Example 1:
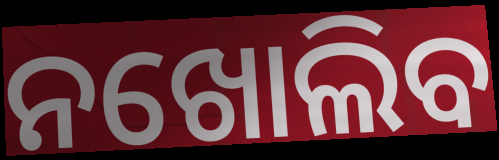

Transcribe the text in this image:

ନଖୋଲିବ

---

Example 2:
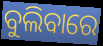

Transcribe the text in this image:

ବୁଲିବାରେ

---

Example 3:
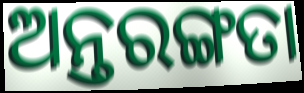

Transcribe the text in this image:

ଅନ୍ତରଙ୍ଗତା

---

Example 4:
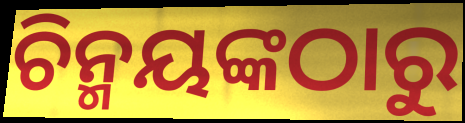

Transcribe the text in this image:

ଚିନ୍ମୟଙ୍କଠାରୁ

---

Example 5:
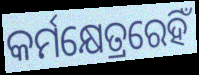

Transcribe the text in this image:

କର୍ମକ୍ଷେତ୍ରରେହିଁ